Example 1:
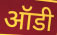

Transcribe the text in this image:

ऑडी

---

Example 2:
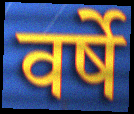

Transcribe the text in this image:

वर्षे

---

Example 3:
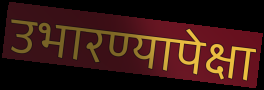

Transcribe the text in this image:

उभारण्यापेक्षा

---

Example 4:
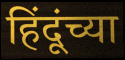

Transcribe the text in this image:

हिंदूंच्या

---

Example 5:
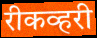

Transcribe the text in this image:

रीकव्हरी